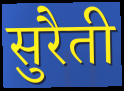
सुरैती